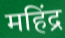
महिंद्र